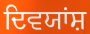
ਦਿਵਯਾਂਸ਼